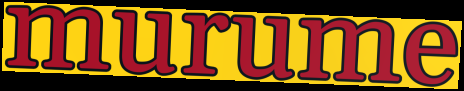
murume